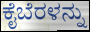
ಕೈಬೆರಳನ್ನು